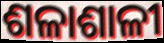
ଶଳାଶାଳୀ